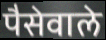
पैसेवाले